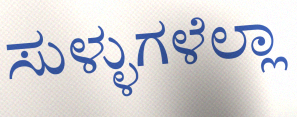
ಸುಳ್ಳುಗಳೆಲ್ಲಾ